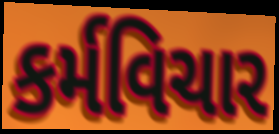
કર્મવિચાર